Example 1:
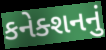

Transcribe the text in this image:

કનેક્શનનું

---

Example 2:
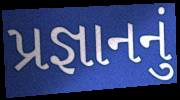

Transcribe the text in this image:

પ્રજ્ઞાનનું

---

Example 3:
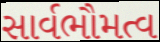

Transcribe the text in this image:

સાર્વભૌમત્વ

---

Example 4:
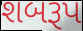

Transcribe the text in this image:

શબરૂપ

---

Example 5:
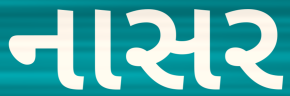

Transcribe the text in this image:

નાસર